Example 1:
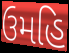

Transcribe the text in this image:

ઉમહિ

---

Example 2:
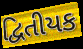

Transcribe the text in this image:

દ્વિતીયક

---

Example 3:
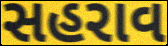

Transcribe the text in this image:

સહરાવ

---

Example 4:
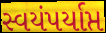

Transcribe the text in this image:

સ્વયંપર્યાપ્ત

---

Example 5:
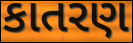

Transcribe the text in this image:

કાતરણ